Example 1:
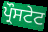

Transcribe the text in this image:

ਪ੍ਰੌਸਟੇਟ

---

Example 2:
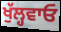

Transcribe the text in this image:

ਖੁੱਲ੍ਹਵਾਓ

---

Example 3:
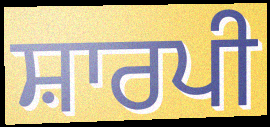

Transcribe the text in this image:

ਸ਼ਾਰਪੀ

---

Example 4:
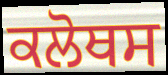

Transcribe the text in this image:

ਕਲੋਥਸ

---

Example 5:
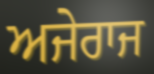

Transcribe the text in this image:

ਅਜੇਰਾਜ